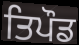
ਤਿਪੌਡ